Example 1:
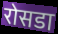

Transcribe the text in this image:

रोसडा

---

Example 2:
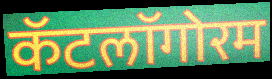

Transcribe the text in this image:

कॅटलॉगोरम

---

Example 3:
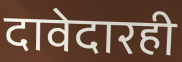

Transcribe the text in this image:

दावेदारही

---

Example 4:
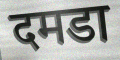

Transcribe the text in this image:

दमडा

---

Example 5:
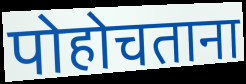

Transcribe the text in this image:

पोहोचताना